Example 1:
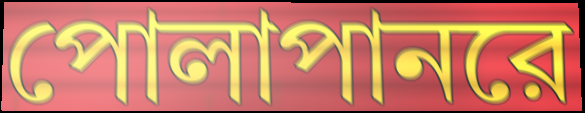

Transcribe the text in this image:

পোলাপানরে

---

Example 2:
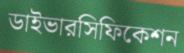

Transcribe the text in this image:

ডাইভারসিফিকেশন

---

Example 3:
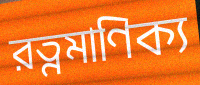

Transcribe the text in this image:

রত্নমাণিক্য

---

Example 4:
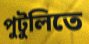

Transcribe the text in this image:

পুটুলিতে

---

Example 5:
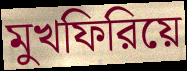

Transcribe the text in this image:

মুখফিরিয়ে